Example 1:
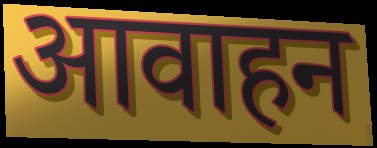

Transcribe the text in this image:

आवाहन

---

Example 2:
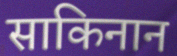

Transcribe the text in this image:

साकिनान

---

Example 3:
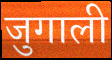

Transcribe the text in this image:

जुगाली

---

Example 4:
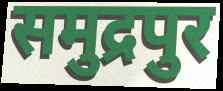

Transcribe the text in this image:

समुद्रपुर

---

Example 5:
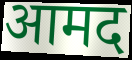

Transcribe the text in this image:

आमद